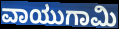
ವಾಯುಗಾಮಿ